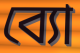
ব্যো